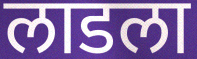
लाडला